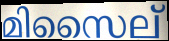
മിസൈല്